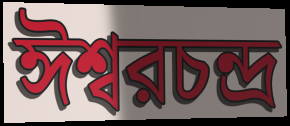
ঈশ্বরচন্দ্র